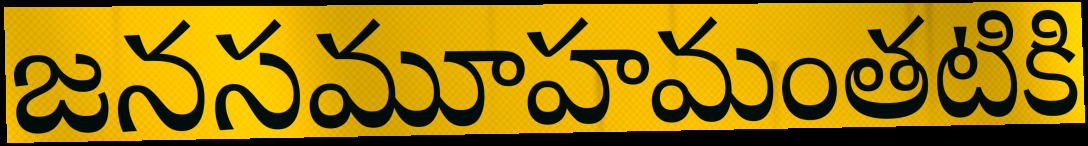
జనసమూహమంతటికి